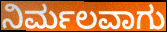
ನಿರ್ಮಲವಾಗು